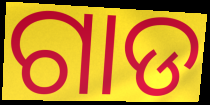
ଗାଡ